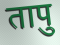
तापु